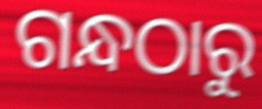
ଗନ୍ଧଠାରୁ